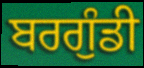
ਬਰਗੁੰਡੀ